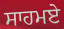
ਸਾਹਮਏ